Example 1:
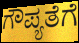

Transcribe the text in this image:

ಗೌಪ್ಯತೆಗೆ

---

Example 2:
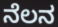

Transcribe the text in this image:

ನೆಲನ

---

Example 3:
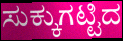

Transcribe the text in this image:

ಸುಕ್ಕುಗಟ್ಟಿದ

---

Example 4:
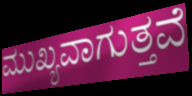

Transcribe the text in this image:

ಮುಖ್ಯವಾಗುತ್ತವೆ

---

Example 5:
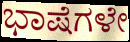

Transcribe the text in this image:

ಭಾಷೆಗಳೇ